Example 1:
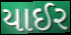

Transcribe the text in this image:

યાઈર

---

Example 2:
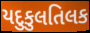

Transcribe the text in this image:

યદુકુલતિલક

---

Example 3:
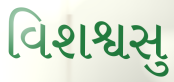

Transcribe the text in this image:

વિશશ્વસુ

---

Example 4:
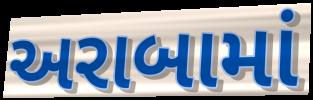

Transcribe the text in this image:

અરાબામાં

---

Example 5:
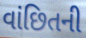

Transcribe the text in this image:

વાંછિતની